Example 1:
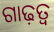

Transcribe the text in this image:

ଗାଢ଼ତ୍ବ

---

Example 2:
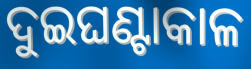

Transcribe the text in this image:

ଦୁଇଘଣ୍ଟାକାଳ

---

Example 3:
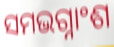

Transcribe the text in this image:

ସମଭଗ୍ନାଂଶ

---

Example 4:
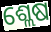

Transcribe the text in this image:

ଶ୍ଲେଷ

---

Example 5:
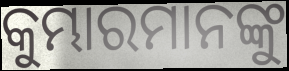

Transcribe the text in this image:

କୁମ୍ଭାରମାନଙ୍କୁ